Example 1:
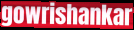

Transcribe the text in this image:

gowrishankar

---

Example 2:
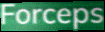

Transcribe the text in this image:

Forceps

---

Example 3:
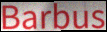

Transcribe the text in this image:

Barbus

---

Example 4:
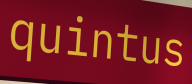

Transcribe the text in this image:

quintus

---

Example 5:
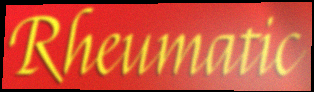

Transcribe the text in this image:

Rheumatic